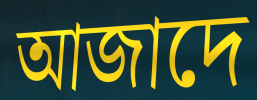
আজাদে